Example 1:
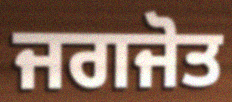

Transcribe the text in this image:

ਜਗਜੋਤ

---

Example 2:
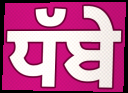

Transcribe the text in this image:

ਧੱਬੇ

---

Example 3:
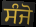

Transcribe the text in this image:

ਸੰਜੋ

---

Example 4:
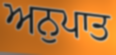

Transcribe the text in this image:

ਅਨੁਪਾਤ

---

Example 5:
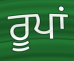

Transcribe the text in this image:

ਰੂਪਾਂ